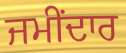
ਜਮੀਂਦਾਰ